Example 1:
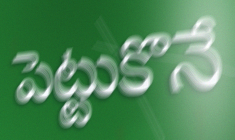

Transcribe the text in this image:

పెట్టుకొనే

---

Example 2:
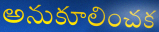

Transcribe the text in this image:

అనుకూలించక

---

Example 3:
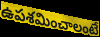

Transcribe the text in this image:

ఉపశమించాలంటే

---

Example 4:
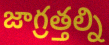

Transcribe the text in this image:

జాగ్రత్తల్ని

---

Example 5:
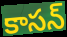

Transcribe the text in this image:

కాసన్